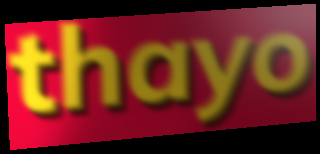
thayo